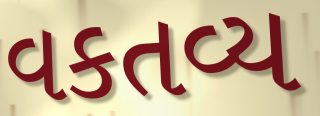
વકતવ્ય